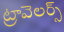
ట్రావెలర్స్